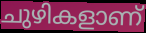
ചുഴികളാണ്